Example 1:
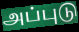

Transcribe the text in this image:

அப்புடு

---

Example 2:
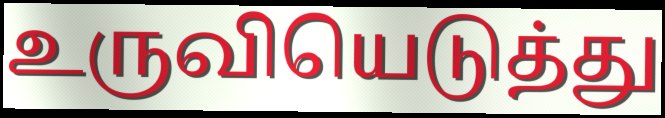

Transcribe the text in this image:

உருவியெடுத்து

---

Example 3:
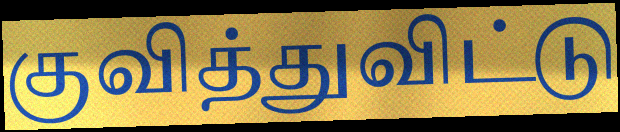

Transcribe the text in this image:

குவித்துவிட்டு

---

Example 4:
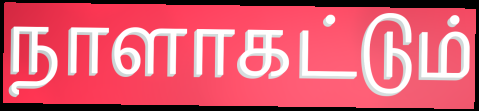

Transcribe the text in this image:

நாளாகட்டும்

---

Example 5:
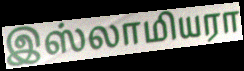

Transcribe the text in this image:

இஸ்லாமியரா